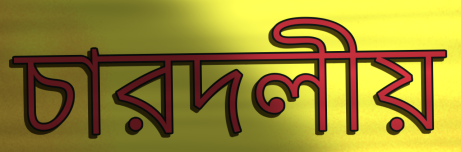
চারদলীয়